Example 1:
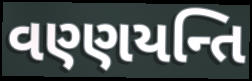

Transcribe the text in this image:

વણ્ણયન્તિ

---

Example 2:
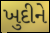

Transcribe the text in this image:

ખુદીને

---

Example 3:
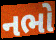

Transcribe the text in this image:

નભો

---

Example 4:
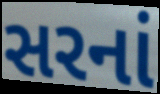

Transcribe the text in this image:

સરનાં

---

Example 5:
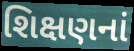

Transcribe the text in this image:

શિક્ષણનાં